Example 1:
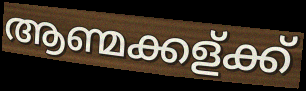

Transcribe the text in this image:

ആണ്മക്കള്ക്ക്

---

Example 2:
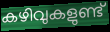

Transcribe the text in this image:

കഴിവുകളുണ്ട്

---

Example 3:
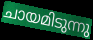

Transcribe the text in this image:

ചായമിടുന്നു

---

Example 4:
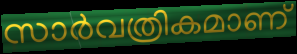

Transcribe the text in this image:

സാർവത്രികമാണ്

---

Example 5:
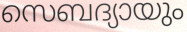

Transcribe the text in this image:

സെബദ്യായും